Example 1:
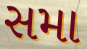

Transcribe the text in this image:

સમા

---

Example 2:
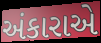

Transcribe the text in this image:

અંકારાએ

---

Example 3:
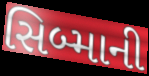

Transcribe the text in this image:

સિબ્માની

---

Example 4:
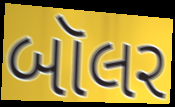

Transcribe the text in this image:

બૉલર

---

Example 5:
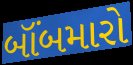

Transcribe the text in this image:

બૉંબમારો